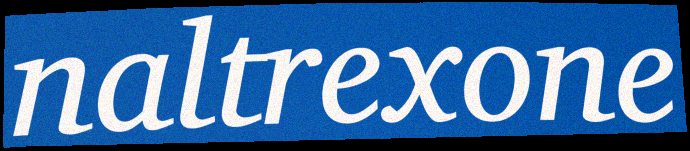
naltrexone